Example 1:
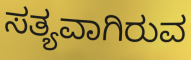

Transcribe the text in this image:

ಸತ್ಯವಾಗಿರುವ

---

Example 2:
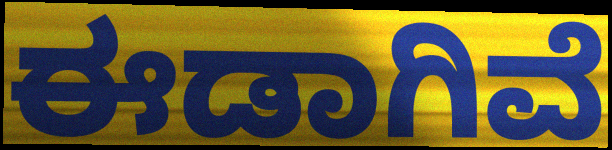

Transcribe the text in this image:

ಈಡಾಗಿವೆ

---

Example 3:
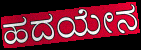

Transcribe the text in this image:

ಹದಯೇನ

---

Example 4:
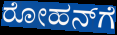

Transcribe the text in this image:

ರೋಹನ್‌ಗೆ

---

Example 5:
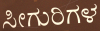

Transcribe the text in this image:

ಸೀಗುರಿಗಳ